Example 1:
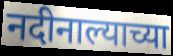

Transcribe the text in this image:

नदीनाल्याच्या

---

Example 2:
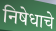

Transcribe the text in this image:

निषेधाचे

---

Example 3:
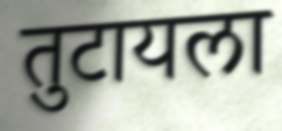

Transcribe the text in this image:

तुटायला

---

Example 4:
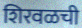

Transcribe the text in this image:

शिरवळची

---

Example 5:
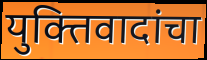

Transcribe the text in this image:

युक्तिवादांचा